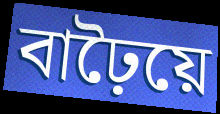
বাঢ়ৈয়ে